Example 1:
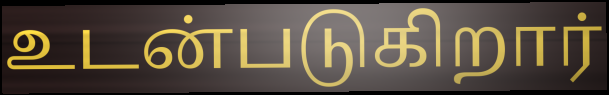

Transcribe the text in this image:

உடன்படுகிறார்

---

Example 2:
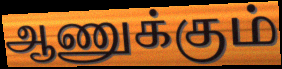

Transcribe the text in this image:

ஆணுக்கும்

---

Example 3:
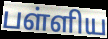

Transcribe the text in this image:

பள்ளிய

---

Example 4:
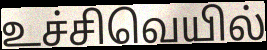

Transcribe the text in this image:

உச்சிவெயில்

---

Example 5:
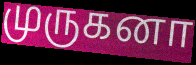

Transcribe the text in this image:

முருகனா